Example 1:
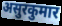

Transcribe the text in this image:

असुरकुमार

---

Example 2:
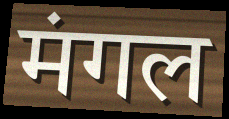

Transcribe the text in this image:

मंगल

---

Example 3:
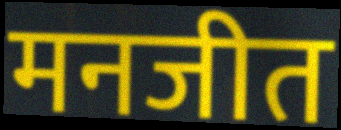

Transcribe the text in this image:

मनजीत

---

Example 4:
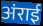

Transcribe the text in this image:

अंराई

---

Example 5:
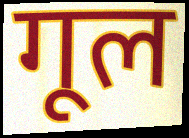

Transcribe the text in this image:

गूल